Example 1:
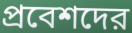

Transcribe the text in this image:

প্রবেশদের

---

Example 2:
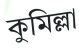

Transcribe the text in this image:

কুমিল্লা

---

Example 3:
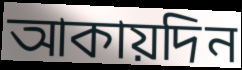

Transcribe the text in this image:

আকায়দিন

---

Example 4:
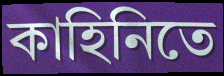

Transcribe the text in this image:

কাহিনিতে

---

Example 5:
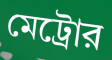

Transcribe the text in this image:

মেট্রোর